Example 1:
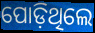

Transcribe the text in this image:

ପୋଡ଼ିଥିଲେ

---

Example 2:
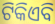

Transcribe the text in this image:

ଟିକିଏବି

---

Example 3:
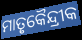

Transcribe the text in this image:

ମାତୃକୈନ୍ଦ୍ରୀକ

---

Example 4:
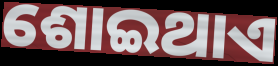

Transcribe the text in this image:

ଶୋଇଥାଏ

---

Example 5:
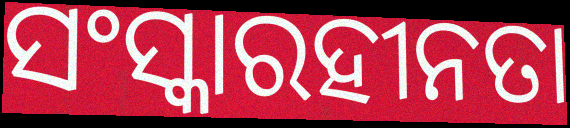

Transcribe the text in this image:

ସଂସ୍କାରହୀନତା